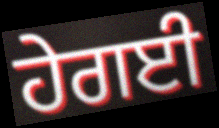
ਹੇਗਈ